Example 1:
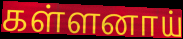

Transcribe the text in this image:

கள்ளனாய்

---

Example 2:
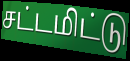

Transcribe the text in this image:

சட்டமிட்டு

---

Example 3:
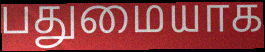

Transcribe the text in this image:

பதுமையாக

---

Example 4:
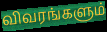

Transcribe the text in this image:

விவரங்களும்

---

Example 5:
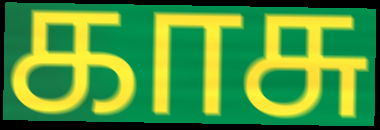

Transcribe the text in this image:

காசு